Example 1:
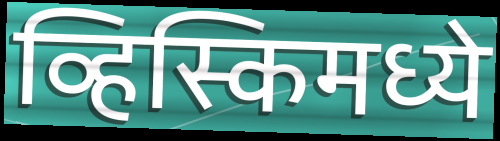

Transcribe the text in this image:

व्हिस्किमध्ये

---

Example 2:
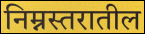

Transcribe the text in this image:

निम्नस्तरातील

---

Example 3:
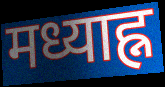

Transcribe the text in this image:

मध्याह्न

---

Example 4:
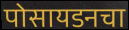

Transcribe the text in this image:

पोसायडनचा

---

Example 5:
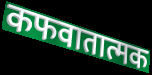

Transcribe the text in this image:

कफवातात्मक